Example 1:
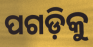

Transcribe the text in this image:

ପଗଡ଼ିକୁ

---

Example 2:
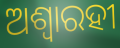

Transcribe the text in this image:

ଅଶ୍ୱାରହୀ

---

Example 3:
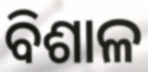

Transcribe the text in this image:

ବିଶାଳ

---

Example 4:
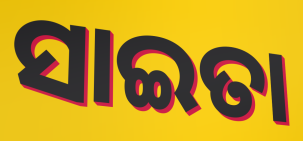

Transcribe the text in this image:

ସାଇତା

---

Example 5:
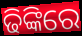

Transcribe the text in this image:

ଢିଙ୍କିରେ